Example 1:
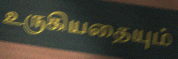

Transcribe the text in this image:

உருகியதையும்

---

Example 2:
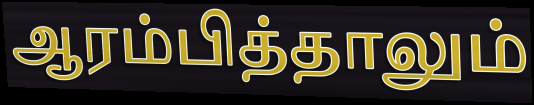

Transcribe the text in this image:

ஆரம்பித்தாலும்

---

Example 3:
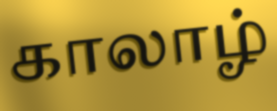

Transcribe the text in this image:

காலாழ்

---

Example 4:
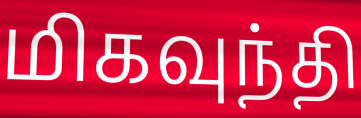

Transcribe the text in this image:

மிகவுந்தி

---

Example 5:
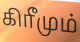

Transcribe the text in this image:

கிரீமும்